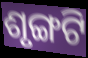
ଶୃଙ୍ଗଟି